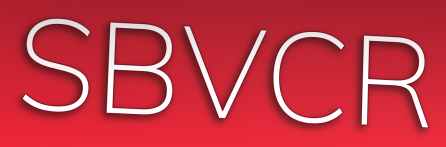
SBVCR